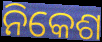
ନିକେଶ